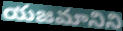
యజమానిని